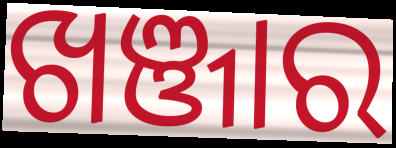
ଖଞ୍ଜାର